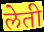
लेती